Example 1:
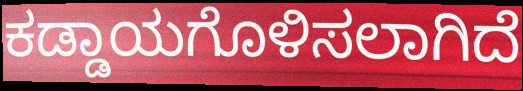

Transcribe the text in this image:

ಕಡ್ಡಾಯಗೊಳಿಸಲಾಗಿದೆ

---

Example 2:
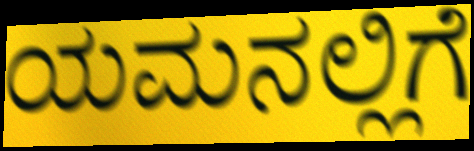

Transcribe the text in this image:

ಯಮನಲ್ಲಿಗೆ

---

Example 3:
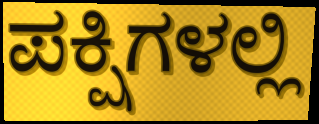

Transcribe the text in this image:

ಪಕ್ಷಿಗಳಲ್ಲಿ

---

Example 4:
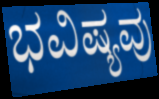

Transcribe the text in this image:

ಭವಿಷ್ಯವು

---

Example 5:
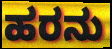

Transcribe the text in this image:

ಹರನು